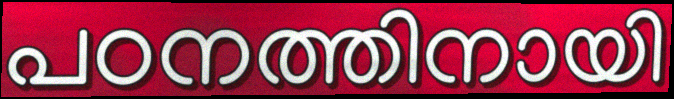
പഠനത്തിനായി